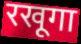
रखूगा